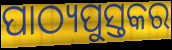
ପାଠ୍ୟପୁସ୍ତକର